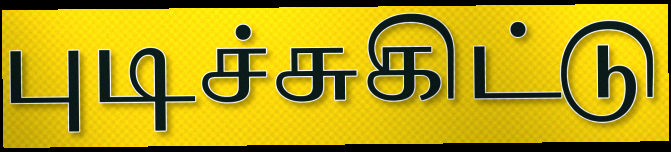
புடிச்சுகிட்டு